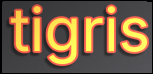
tigris